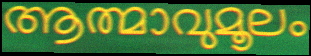
ആത്മാവുമൂലം